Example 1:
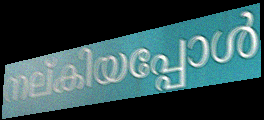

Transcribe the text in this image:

നല്കിയപ്പോൾ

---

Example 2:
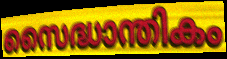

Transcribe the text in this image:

സൈദ്ധാന്തികം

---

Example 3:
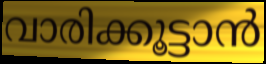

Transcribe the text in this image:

വാരിക്കൂട്ടാൻ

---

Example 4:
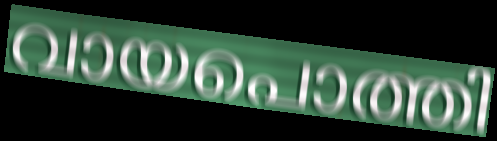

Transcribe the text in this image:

വായപൊത്തി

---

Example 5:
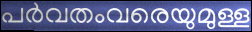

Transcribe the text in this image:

പർവതംവരെയുമുള്ള